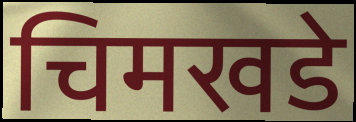
चिमखडे